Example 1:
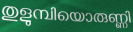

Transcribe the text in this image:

തുളുമ്പിയൊരുണ്ണി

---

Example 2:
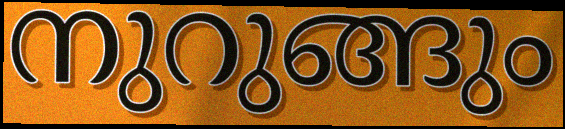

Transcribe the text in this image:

നുറുങ്ങും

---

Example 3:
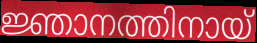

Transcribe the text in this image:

ജ്ഞാനത്തിനായ്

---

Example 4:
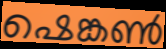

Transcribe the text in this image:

ഷെങ്കൺ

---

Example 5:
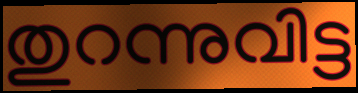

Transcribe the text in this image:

തുറന്നുവിട്ട